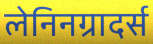
लेनिनग्रादर्स